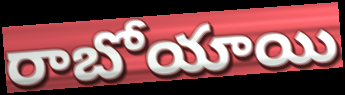
రాబోయాయి